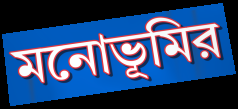
মনোভূমির